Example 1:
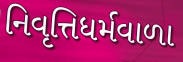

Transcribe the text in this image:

નિવૃત્તિધર્મવાળા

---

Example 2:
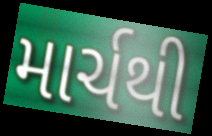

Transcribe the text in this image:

માર્ચથી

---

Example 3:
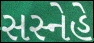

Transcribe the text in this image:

સસ્નેહે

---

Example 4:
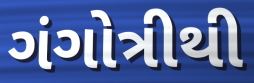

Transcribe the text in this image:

ગંગોત્રીથી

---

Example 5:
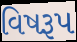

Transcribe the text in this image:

વિષરૂપ